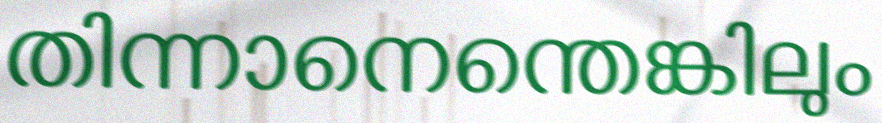
തിന്നാനെന്തെങ്കിലും